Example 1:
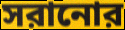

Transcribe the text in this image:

সরানোর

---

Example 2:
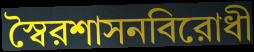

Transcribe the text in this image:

স্বৈরশাসনবিরোধী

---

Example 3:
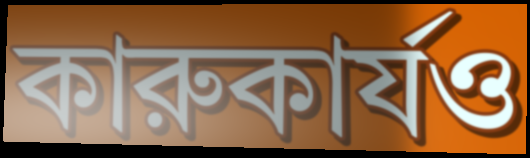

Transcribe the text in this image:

কারুকার্যও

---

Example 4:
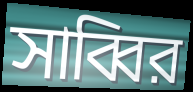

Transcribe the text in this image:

সাব্বির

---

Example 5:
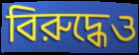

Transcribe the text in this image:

বিরুদ্ধেও